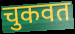
चुकवत